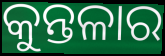
କୁନ୍ତଳାର